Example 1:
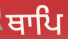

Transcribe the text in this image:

ਥਾਪਿ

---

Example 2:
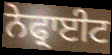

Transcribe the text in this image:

ਨੇਫ੍ਰਾਈਟ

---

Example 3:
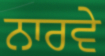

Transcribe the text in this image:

ਨਾਰਵੇ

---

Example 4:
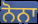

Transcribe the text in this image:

ਨੋਨਾ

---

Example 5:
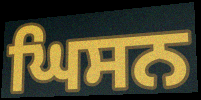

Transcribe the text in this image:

ਘਿਸਨ